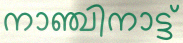
നാഞ്ചിനാട്ട്